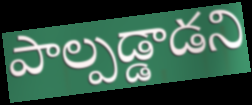
పాల్పడ్డాడని